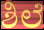
ಶಿಲೆ